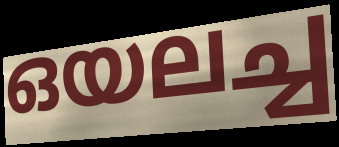
ഒയലച്ച